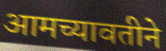
आमच्यावतीने